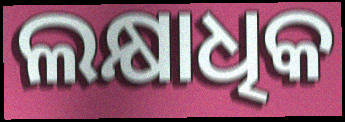
ଲକ୍ଷାଧିକ